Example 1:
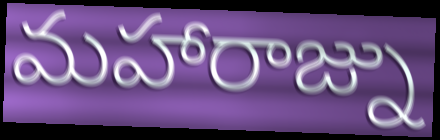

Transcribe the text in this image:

మహారాజ్ను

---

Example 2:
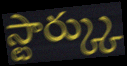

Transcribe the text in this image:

స్టార్క్కు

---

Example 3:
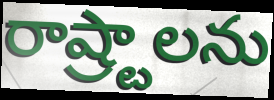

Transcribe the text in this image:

రాష్ర్టాలను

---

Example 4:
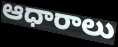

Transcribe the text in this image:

ఆధారాలు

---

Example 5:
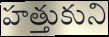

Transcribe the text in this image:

హత్తుకుని